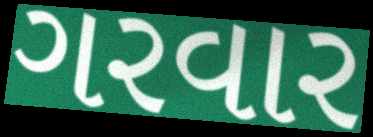
ગરવાર